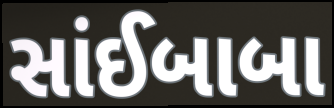
સાંઈબાબા